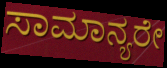
ಸಾಮಾನ್ಯರೇ